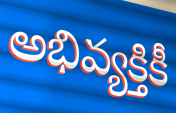
అభివ్యక్తికీ